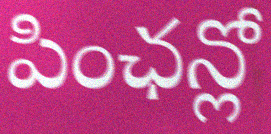
పింఛన్లో